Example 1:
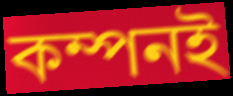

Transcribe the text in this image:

কম্পনই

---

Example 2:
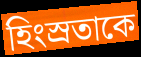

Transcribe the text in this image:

হিংস্রতাকে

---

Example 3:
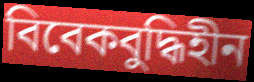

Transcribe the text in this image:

বিবেকবুদ্ধিহীন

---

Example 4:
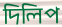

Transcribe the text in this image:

দিলিপ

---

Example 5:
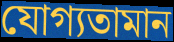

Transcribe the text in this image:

যোগ্যতামান